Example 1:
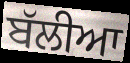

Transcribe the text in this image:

ਬੱਲੀਆ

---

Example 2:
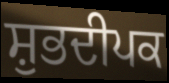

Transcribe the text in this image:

ਸ਼ੁਭਦੀਪਕ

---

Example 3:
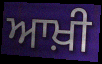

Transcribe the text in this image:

ਆਖ਼ੀ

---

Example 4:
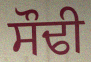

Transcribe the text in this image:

ਸੌਢੀ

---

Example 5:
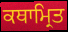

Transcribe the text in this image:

ਕਥਾਮ੍ਰਿਤ